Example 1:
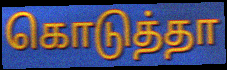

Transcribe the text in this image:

கொடுத்தா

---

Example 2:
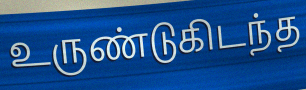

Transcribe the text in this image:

உருண்டுகிடந்த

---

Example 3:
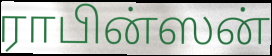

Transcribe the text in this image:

ராபின்ஸன்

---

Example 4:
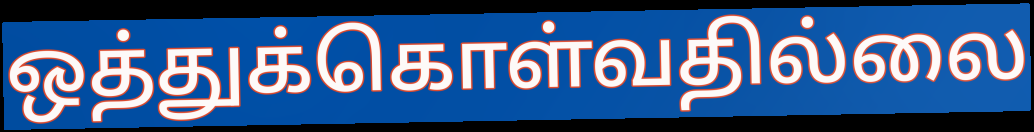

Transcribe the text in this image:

ஒத்துக்கொள்வதில்லை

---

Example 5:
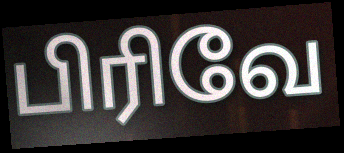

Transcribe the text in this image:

பிரிவே